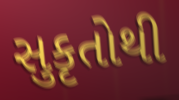
સુકૃતોથી